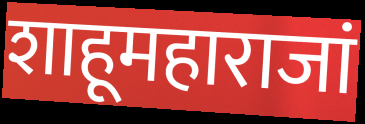
शाहूमहाराजां